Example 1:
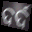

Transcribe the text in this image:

ଦର୍ଦ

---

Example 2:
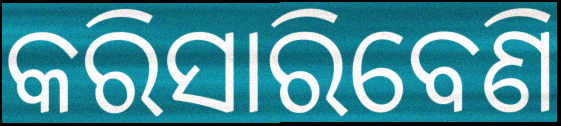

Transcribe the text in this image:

କରିସାରିବେଣି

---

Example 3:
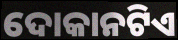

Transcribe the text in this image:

ଦୋକାନଟିଏ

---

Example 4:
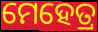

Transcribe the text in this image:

ମେହେତ୍ର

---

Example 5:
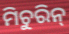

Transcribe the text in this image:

ମିଚୁରିନ୍